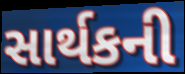
સાર્થકની